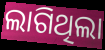
ଲାଗିଥିଲା